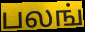
பலங்